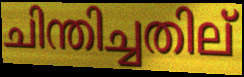
ചിന്തിച്ചതില്